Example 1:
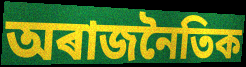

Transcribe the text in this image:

অৰাজনৈতিক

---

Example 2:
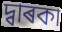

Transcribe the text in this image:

দ্বাৰকা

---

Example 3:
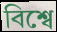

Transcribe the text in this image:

বিশ্বে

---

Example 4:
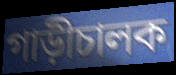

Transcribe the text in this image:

গাড়ীচালক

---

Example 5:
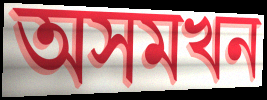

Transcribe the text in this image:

অসমখন